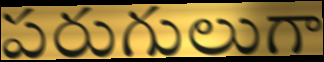
పరుగులుగా